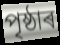
পৃষ্ঠাৰ